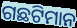
ଗଛଟିମାନ